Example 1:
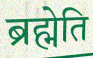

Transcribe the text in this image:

ब्रह्मेति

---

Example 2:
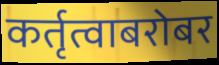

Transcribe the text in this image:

कर्तृत्वाबरोबर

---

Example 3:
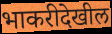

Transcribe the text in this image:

भाकरीदेखील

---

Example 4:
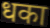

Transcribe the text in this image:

धका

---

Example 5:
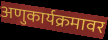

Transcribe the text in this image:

अणुकार्यक्रमावर